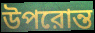
উপরোন্ত